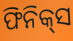
ଫିନିକ୍‍ସ